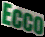
Ecco